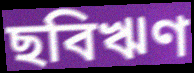
ছবিঋণ